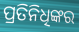
ପ୍ରତିନିଧିଙ୍କର